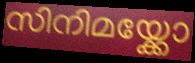
സിനിമയ്ക്കോ